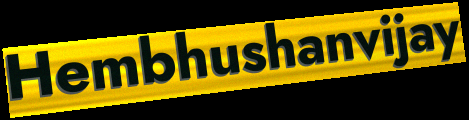
Hembhushanvijay